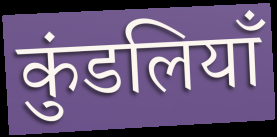
कुंडलियाँ